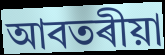
আবতৰীয়া